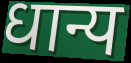
धान्य